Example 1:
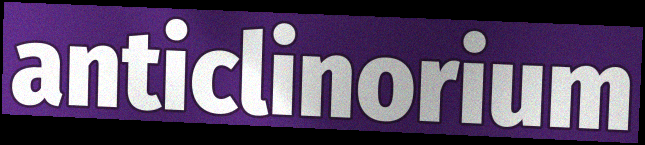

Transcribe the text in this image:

anticlinorium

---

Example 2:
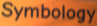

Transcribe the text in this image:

Symbology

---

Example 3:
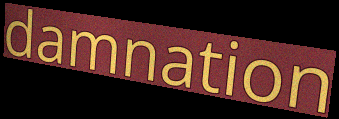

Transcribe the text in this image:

damnation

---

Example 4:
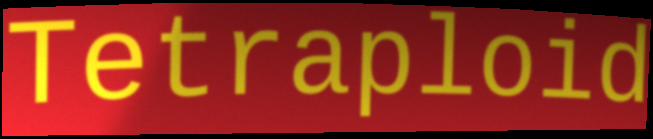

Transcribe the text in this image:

Tetraploid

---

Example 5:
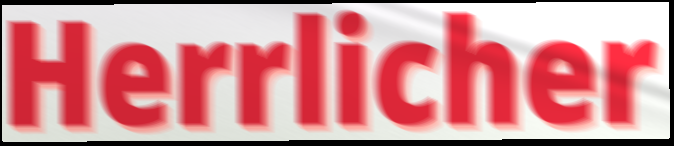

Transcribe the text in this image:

Herrlicher